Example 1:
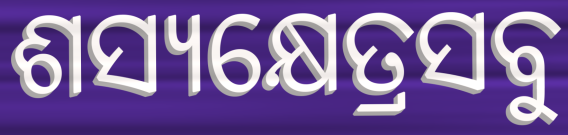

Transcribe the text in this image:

ଶସ୍ୟକ୍ଷେତ୍ରସବୁ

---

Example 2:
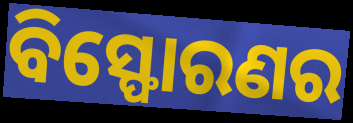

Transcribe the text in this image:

ବିସ୍ଫୋରଣର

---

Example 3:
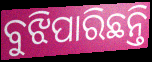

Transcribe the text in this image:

ବୁଝିପାରିଛନ୍ତି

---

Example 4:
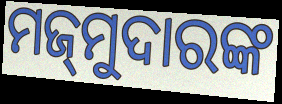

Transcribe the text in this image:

ମଜ୍‍ମୁଦାରଙ୍କ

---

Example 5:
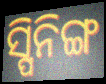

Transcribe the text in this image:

ସ୍ପିନିଙ୍ଗ